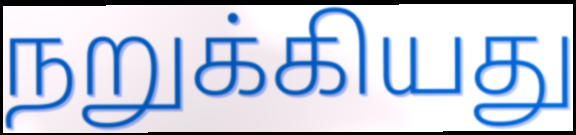
நறுக்கியது